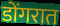
डोंगरात